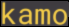
kamo